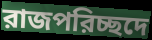
রাজপরিচ্ছদে